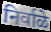
निर्वाळे